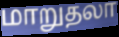
மாறுதலா